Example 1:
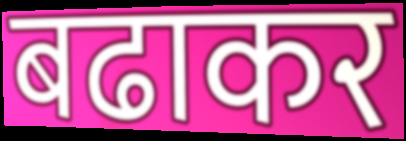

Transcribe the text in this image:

बढाकर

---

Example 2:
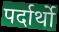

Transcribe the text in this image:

पर्दार्थो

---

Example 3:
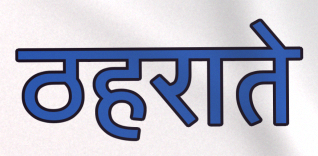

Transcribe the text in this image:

ठहराते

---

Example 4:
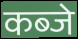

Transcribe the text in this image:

कब्‍जे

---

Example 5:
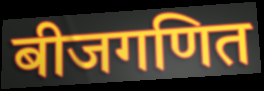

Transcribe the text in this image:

बीजगणित